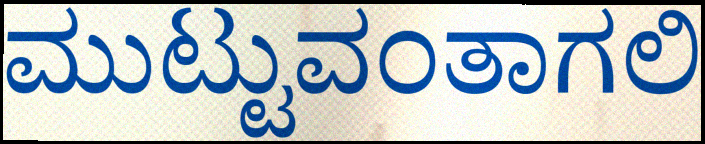
ಮುಟ್ಟುವಂತಾಗಲಿ